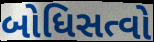
બોધિસત્વો